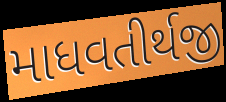
માધવતીર્થજી